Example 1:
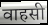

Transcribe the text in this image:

वाहसी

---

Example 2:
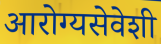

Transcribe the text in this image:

आरोग्यसेवेशी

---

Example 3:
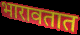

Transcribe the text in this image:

भारावतात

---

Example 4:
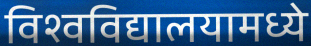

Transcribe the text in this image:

विश्वविद्यालयामध्ये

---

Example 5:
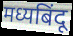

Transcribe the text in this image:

मध्यबिंदू